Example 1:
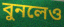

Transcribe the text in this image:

বুনলেও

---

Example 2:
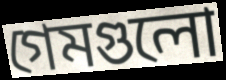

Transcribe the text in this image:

গেমগুলো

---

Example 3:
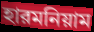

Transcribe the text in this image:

হারমনিয়াম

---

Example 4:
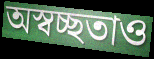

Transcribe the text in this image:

অস্বচ্ছতাও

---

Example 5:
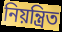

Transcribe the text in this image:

নিয়ন্ত্রিত